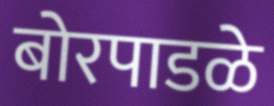
बोरपाडळे